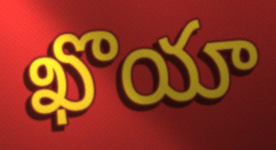
ఖొయా